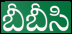
బీబీసి